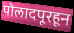
पोलादपूरहून